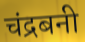
चंद्रबनी